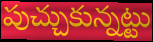
పుచ్చుకున్నట్టు